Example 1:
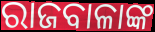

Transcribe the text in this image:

ରାଜବାଳାଙ୍କ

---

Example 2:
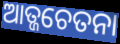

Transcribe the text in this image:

ଆତ୍ଜଚେତନା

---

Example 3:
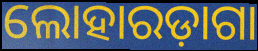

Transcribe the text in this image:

ଲୋହାରଡ଼ାଗା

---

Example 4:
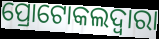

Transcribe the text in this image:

ପ୍ରୋଟୋକଲଦ୍ୱାରା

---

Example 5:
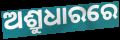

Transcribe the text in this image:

ଅଶ୍ରୁଧାରରେ